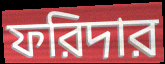
ফরিদার